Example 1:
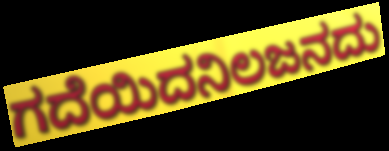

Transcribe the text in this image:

ಗದೆಯಿದನಿಲಜನದು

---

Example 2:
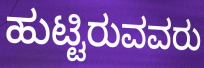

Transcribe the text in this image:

ಹುಟ್ಟಿರುವವರು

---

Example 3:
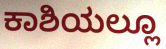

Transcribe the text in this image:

ಕಾಶಿಯಲ್ಲೂ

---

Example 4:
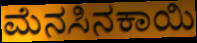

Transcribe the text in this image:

ಮೆನಸಿನಕಾಯಿ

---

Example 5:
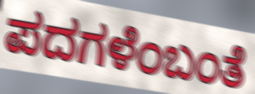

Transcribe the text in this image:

ಪದಗಳೆಂಬಂತೆ